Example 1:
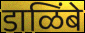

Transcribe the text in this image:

डाळिंबे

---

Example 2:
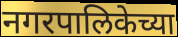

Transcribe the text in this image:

नगरपालिकेच्या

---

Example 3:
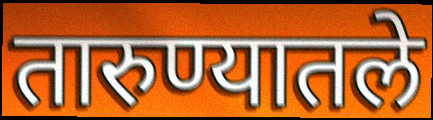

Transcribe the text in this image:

तारुण्यातले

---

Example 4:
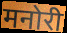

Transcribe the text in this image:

मनोरी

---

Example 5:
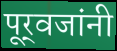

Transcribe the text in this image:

पूर्वजांनी